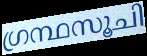
ഗ്രന്ഥസൂചി